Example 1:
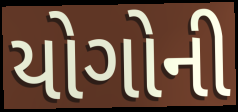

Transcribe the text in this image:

યોગોની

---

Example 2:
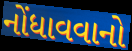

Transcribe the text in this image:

નોંધાવવાનો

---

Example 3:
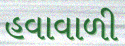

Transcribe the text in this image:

હવાવાળી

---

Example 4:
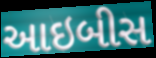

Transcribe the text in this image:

આઇબીસ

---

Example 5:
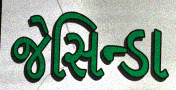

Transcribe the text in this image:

જેસિન્ડા